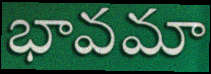
భావమా